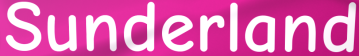
Sunderland